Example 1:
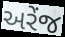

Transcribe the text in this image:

અરેંજ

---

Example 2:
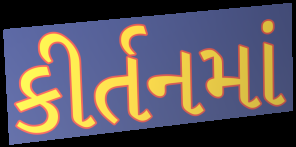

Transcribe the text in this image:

કીર્તનમાં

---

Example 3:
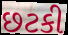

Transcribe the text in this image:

છટકી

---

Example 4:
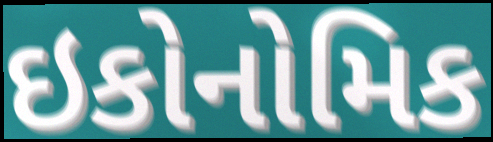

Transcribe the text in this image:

ઇકોનોમિક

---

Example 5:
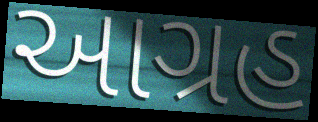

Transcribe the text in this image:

આગ્રહ